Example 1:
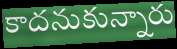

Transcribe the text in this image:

కాదనుకున్నారు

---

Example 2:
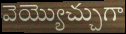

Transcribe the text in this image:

వెయ్యొచ్చుగా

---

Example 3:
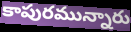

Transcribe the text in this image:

కాపురమున్నారు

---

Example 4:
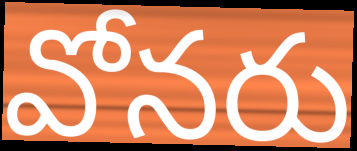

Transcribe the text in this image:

వోనరు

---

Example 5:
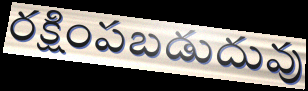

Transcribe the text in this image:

రక్షింపబడుదువు